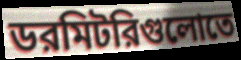
ডরমিটরিগুলোতে